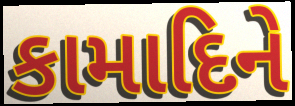
કામાદિને